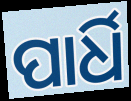
ପାର୍ଧି